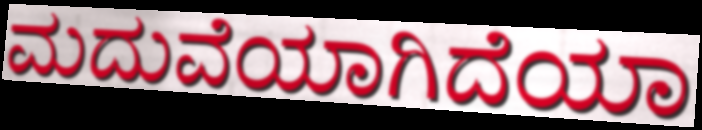
ಮದುವೆಯಾಗಿದೆಯಾ